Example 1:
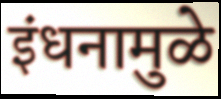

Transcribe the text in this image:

इंधनामुळे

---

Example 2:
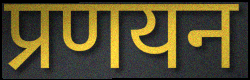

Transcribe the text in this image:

प्रणयन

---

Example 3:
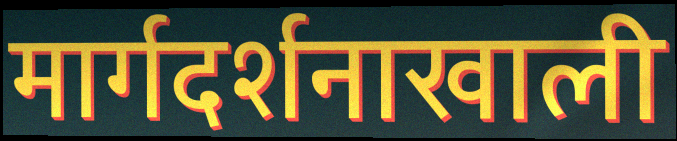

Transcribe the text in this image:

मार्गदर्शनाखाली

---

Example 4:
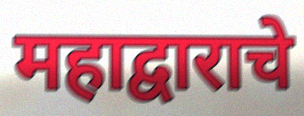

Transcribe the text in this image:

महाद्वाराचे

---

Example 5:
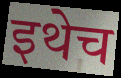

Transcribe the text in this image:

इथेच